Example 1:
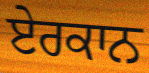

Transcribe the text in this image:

ਏਰਕਾਨ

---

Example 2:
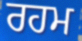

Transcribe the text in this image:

ਰਹਮ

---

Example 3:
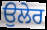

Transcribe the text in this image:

ਉਲੇਰ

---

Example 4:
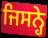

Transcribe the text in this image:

ਜਿਸਨ੍ਹੇ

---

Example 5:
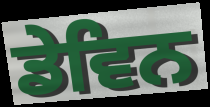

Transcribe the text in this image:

ਡੇਵਿਨ